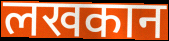
लखकान